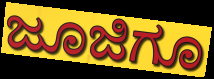
ಜೂಜಿಗೂ